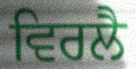
ਵਿਰਲੈ